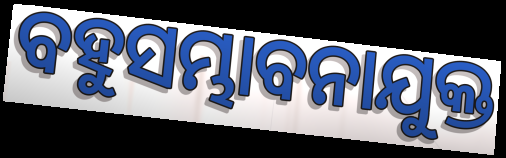
ବହୁସମ୍ଭାବନାଯୁକ୍ତ